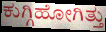
ಕುಗ್ಗಿಹೋಗಿತ್ತು